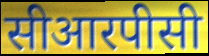
सीआरपीसी